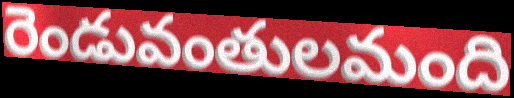
రెండువంతులమంది